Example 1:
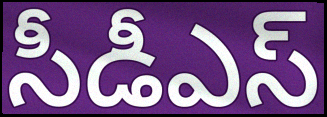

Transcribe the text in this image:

సీడీఎస్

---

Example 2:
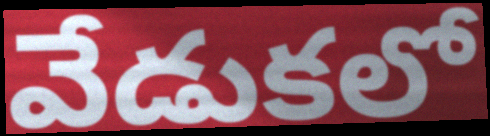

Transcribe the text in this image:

వేడుకలో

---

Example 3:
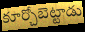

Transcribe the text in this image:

కూర్చోబెట్టాడు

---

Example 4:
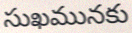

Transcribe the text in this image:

సుఖమునకు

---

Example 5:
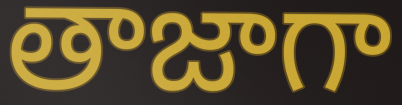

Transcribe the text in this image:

తాజాగా